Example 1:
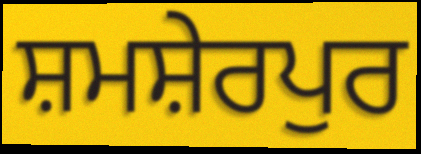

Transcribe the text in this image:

ਸ਼ਮਸ਼ੇਰਪੁਰ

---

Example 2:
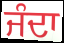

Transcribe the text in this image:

ਜੰਦਾ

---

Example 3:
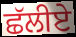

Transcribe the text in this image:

ਛੱਲੀਏ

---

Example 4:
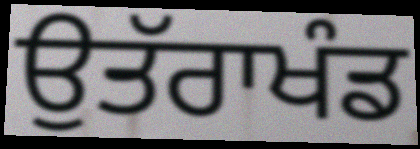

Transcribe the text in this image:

ਉਤੱਰਾਖੰਡ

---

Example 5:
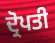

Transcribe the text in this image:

ਦ੍ਰੋਪਤੀ